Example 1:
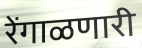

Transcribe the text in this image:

रेंगाळणारी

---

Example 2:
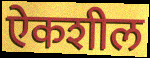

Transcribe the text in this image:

ऐकशील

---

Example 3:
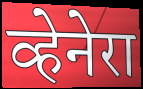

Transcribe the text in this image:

व्हेनेरा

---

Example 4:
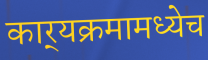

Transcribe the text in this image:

कार्यक्रमामध्येच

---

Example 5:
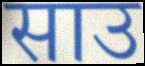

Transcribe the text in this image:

साउ